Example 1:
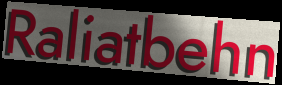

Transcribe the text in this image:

Raliatbehn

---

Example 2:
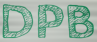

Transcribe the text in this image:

DPB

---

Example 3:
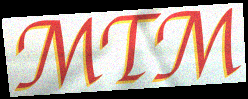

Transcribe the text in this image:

MTM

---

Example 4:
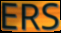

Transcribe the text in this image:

ERS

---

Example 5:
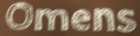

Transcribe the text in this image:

Omens